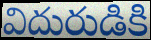
విదురుడికి